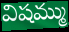
విషమ్ము